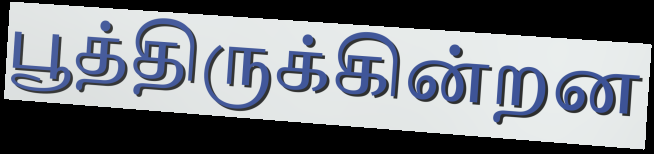
பூத்திருக்கின்றன